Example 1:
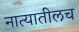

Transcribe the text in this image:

नात्यातीलच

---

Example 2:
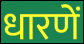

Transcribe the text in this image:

धारणें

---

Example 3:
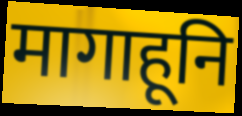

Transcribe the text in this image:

मागाहूनि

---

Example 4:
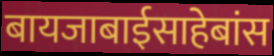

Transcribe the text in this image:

बायजाबाईसाहेबांस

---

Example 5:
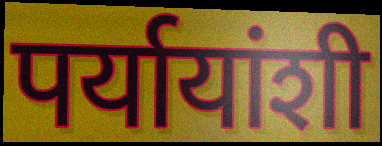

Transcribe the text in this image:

पर्यायांशी